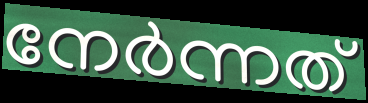
നേർന്നത്